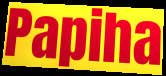
Papiha